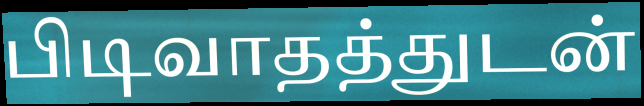
பிடிவாதத்துடன்